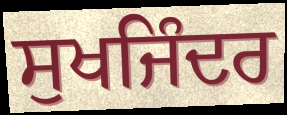
ਸੁਖਜਿੰਦਰ